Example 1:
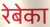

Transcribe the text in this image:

रेबेका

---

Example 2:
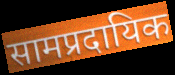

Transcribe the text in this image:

सामप्रदायिक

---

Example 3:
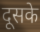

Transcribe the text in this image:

दूसके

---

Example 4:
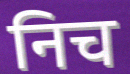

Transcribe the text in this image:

निच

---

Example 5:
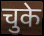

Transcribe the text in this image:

चुके